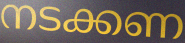
നടക്കണ